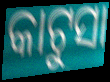
କାଟୁସା